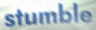
stumble